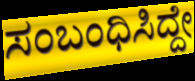
ಸಂಬಂಧಿಸಿದ್ದೇ